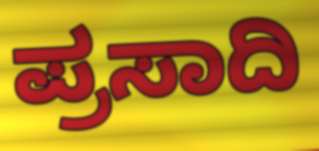
ಪ್ರಸಾದಿ